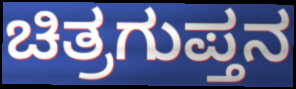
ಚಿತ್ರಗುಪ್ತನ